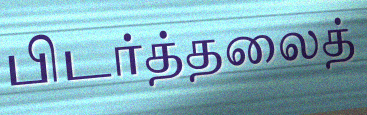
பிடர்த்தலைத்